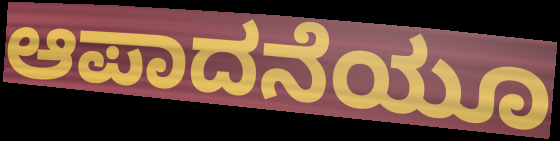
ಆಪಾದನೆಯೂ